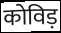
कोविड़